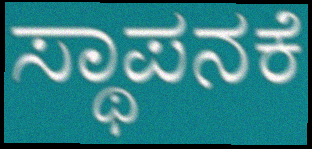
ಸ್ಥಾಪನಕೆ